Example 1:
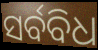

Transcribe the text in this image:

ସର୍ବବିଧ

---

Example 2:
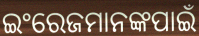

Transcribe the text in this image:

ଇଂରେଜମାନଙ୍କପାଇଁ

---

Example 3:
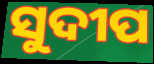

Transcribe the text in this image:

ସୁଦୀପ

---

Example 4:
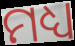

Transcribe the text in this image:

ମଧ୍ୟ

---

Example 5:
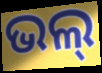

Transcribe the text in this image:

ଭଲ୍